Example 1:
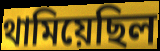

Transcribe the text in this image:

থামিয়েছিল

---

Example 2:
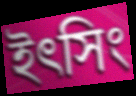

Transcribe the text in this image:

ইৎসিং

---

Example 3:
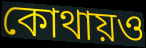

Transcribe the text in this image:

কোথায়ও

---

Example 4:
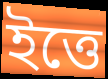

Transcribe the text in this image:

ইত্তে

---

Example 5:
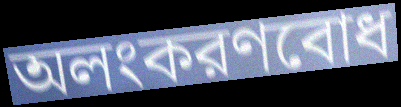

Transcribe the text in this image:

অলংকরণবোধ